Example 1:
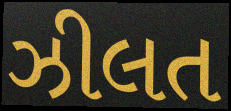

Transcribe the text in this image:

ઝીલત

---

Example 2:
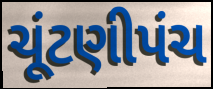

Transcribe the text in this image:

ચૂંટણીપંચ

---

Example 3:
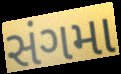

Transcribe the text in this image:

સંગમા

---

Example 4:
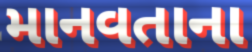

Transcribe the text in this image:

માનવતાના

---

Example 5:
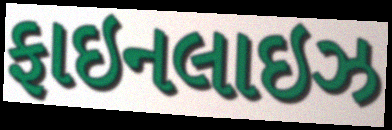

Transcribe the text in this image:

ફાઇનલાઇઝ